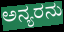
ಅನ್ಯರನು